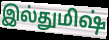
இல்துமிஷ்